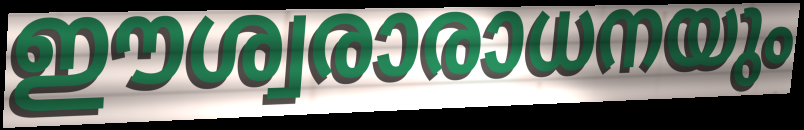
ഈശ്വരാരാധനയും